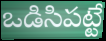
ఒడిసిపట్టే